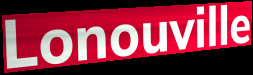
Lonouville